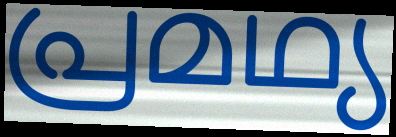
പ്രമഥ്യ